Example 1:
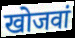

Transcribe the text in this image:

खोजवां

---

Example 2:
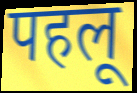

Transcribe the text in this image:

पहलू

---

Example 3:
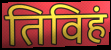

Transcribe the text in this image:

तिविहं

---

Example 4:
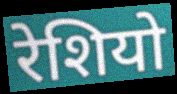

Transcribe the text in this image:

रेशियो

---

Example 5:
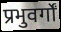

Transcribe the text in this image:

प्रभुवर्गों